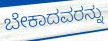
ಬೇಕಾದವರನ್ನು